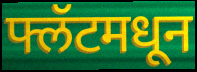
फ्लॅटमधून